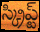
స్క్రిప్ట్